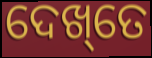
ଦେଖ୍‌ତେ